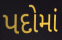
પદોમાં